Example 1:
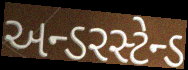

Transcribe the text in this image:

અન્ડરસ્ટેન્ડ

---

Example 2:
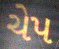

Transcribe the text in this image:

ચેપ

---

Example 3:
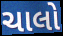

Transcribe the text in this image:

ચાલો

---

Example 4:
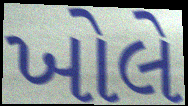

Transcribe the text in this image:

ખોલે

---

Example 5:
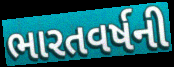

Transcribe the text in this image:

ભારતવર્ષની